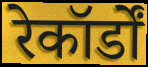
रेकॉर्डों